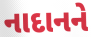
નાદાનને